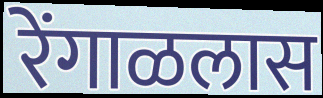
रेंगाळलास